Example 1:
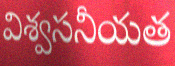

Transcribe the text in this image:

విశ్వసనీయత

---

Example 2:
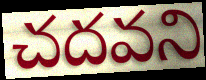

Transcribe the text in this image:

చదవని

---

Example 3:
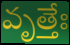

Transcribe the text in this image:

వృత్తేః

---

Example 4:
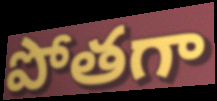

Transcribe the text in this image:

పోతగా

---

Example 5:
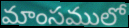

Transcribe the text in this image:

మాంసములో